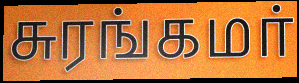
சுரங்கமர்